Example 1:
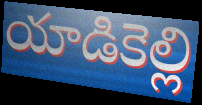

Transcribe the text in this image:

యాడికెల్లి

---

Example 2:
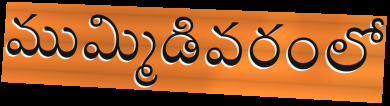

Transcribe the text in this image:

ముమ్మిడివరంలో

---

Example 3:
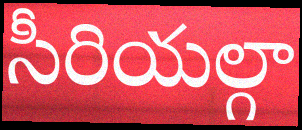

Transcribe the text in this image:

సీరియల్గా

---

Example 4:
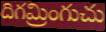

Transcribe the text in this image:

దిగమ్రింగుచు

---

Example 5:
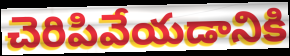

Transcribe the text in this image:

చెరిపివేయడానికి